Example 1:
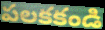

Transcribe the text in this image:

పలకకండి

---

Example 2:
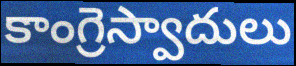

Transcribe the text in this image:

కాంగ్రెస్వాదులు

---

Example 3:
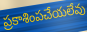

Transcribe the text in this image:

ప్రకాశింపచేయలేవు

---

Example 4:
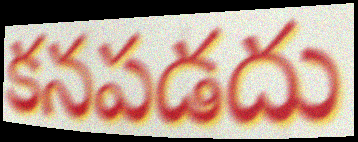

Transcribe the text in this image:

కనపడదు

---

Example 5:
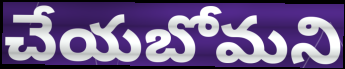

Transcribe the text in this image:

చేయబోమని